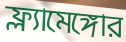
ফ্ল্যামেঙ্গোর